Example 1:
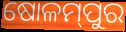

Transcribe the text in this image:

ଷୋଳମ୍‌ପୁର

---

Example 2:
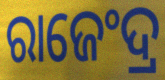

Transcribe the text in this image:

ରାଜେଂଦ୍ର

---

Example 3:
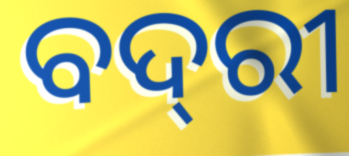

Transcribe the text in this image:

ବଦ୍‌ରୀ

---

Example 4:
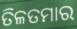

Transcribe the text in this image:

ତିଳତମାର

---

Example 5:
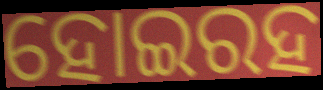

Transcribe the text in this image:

ହୋଇରହ